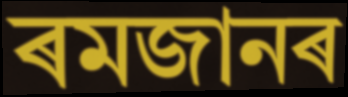
ৰমজানৰ